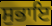
ਸੁਭਾਇ